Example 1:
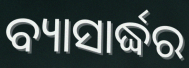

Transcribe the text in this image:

ବ୍ୟାସାର୍ଦ୍ଧର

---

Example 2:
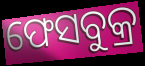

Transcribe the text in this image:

ଫେସବୁକ୍ର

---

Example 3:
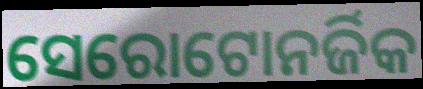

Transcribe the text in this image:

ସେରୋଟୋନର୍ଜିକ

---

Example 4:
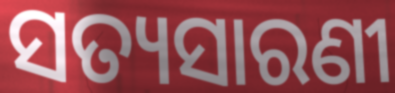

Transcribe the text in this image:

ସତ୍ୟସାରଣୀ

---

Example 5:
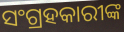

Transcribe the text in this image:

ସଂଗ୍ରହକାରୀଙ୍କ